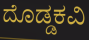
ದೊಡ್ಡಕವಿ